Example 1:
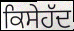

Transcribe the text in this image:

ਕਿਸੇਹੱਦ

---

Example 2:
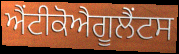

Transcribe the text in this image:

ਐਂਟੀਕੋਐਗੂਲੈਂਟਸ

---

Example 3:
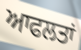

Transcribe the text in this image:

ਆਫਲਤਾਂ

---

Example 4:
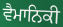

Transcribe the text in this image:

ਵੈਮਾਨਿਕੀ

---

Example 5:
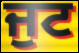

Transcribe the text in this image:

ਜੁਟ